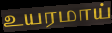
உயரமாய்